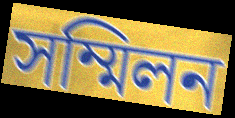
সম্মিলন